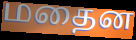
மதைன